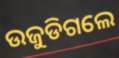
ଉଜୁଡିଗଲେ